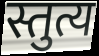
स्तुत्य